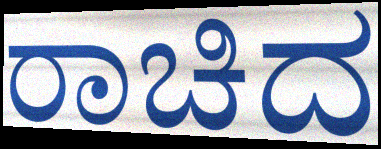
ರಾಚಿದ